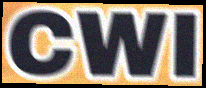
CWI